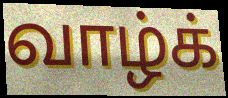
வாழ்க்